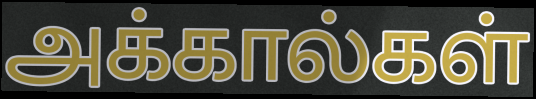
அக்கால்கள்